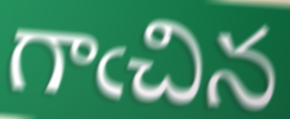
గాఁచిన